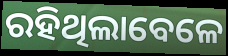
ରହିଥିଲାବେଳେ